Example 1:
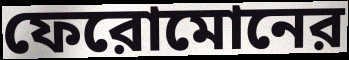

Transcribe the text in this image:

ফেরোমোনের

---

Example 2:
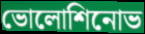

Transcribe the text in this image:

ভোলোশিনোভ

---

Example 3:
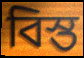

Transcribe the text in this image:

বিস্ত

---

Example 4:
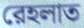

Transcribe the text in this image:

রেহলাত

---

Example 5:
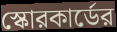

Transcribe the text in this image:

স্কোরকার্ডের